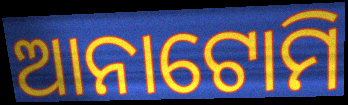
ଆନାଟୋମି